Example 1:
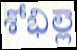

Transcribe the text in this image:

శోభిల్లె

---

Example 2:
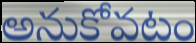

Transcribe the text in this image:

అనుకోవటం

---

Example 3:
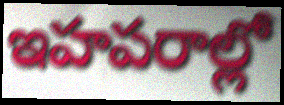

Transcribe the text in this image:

ఇహపరాల్లో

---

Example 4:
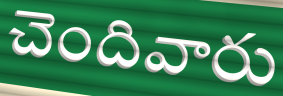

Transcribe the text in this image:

చెందివారు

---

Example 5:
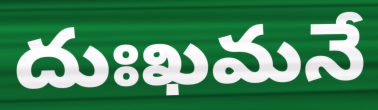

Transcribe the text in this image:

దుఃఖమనే